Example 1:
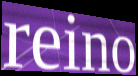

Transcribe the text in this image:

reino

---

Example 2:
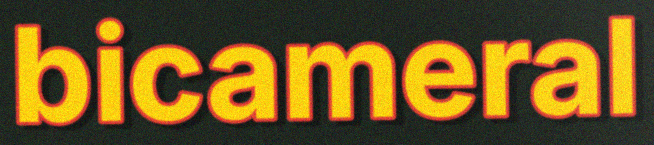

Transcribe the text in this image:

bicameral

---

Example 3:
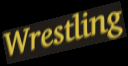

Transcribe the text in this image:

Wrestling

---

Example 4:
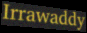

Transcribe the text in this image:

Irrawaddy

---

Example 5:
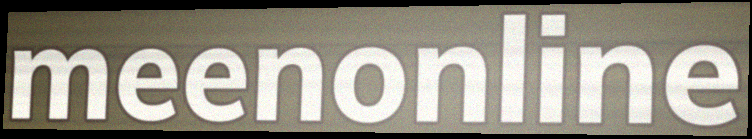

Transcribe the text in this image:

meenonline